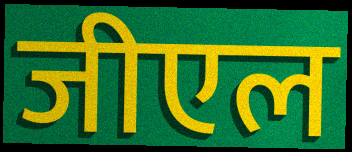
जीएल